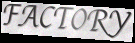
FACTORY